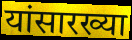
यांसारख्‍या